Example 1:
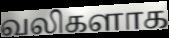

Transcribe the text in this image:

வலிகளாக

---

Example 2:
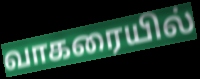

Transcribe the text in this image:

வாகரையில்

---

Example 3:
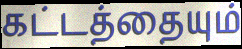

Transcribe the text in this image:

கட்டத்தையும்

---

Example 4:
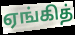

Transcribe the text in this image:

ஏங்கித்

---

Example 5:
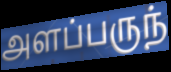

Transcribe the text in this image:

அளப்பருந்